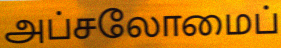
அப்சலோமைப்